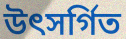
উৎসৰ্গিত